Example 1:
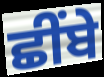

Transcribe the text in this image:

ਛੀਂਬੇ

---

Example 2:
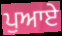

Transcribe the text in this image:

ਪੁਆਏ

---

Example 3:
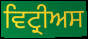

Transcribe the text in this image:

ਵਿਟ੍ਰੀਅਸ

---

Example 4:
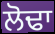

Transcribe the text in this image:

ਲੋਢਾ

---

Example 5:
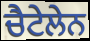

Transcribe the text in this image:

ਚੈਟੇਲੇਨ